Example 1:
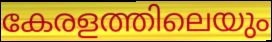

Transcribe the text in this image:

കേരളത്തിലെയും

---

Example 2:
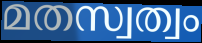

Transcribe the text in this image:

മതസ്വത്വം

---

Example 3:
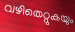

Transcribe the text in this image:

വഴിതെറ്റുകയും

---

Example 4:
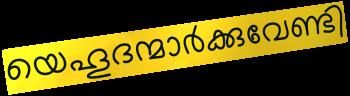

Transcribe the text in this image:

യെഹൂദന്മാർക്കുവേണ്ടി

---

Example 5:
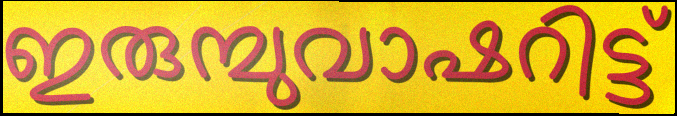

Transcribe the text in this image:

ഇരുമ്പുവാഷറിട്ട്